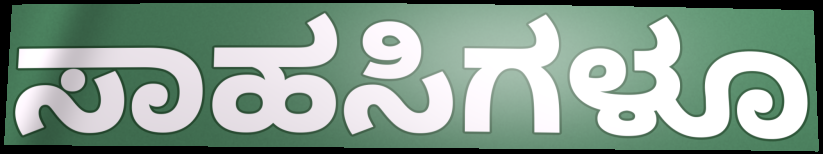
ಸಾಹಸಿಗಳೂ